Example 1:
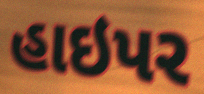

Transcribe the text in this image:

હાઇપર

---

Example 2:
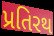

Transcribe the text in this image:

પ્રતિરથ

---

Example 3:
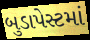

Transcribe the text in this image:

બુડાપેસ્ટમાં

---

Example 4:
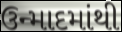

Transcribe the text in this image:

ઉન્માદમાંથી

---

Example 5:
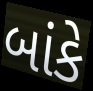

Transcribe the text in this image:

બાંકે